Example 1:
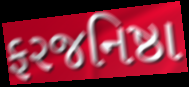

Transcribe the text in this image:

ફરજનિષ્ઠા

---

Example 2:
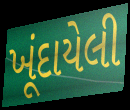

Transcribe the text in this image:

ખૂંદાયેલી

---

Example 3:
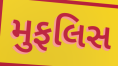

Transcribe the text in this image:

મુફલિસ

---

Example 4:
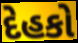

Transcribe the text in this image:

દેહકો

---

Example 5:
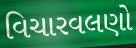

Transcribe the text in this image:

વિચારવલણો